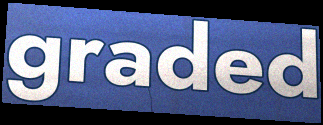
graded